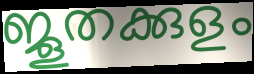
ജൂതക്കുളം